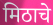
मिठाचे